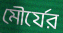
মৌর্যের